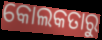
କୋଲକତାରୁ